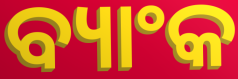
ବ୍ୟାଂକ